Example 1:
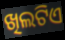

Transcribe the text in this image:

ଖିଲଟିଏ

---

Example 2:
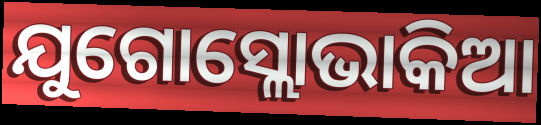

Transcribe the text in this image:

ଯୁଗୋସ୍ଲୋଭାକିଆ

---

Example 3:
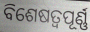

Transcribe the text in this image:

ବିଶେଷତ୍ୱପୂର୍ଣ୍ଣ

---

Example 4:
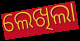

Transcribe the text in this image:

ଲେଖିଲା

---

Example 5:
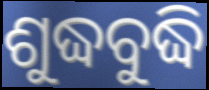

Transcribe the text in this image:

ଶୁଦ୍ଧବୁଦ୍ଧି